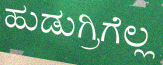
ಹುಡುಗ್ರಿಗೆಲ್ಲ